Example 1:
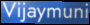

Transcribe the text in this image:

Vijaymuni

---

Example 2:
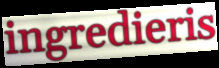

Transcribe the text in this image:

ingredieris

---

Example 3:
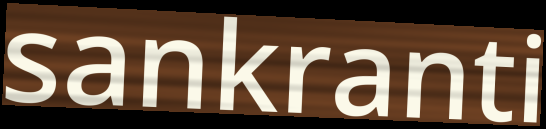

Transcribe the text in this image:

sankranti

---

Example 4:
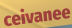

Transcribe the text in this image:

ceivanee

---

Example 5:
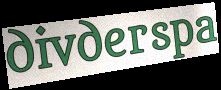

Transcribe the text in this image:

divderspa